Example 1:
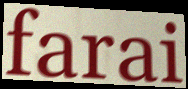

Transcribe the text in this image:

farai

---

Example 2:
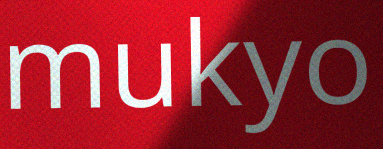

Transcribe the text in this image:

mukyo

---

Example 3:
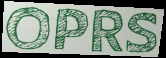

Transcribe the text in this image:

OPRS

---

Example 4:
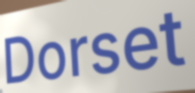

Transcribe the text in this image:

Dorset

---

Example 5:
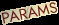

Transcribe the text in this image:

PARAMS